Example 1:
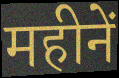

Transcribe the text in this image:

महीनें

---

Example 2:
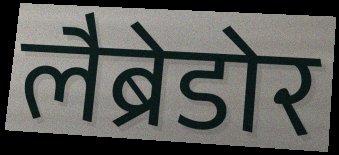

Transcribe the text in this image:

लैब्रेडोर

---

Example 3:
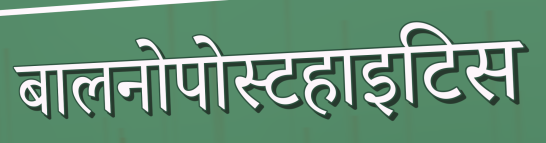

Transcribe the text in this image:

बालनोपोस्टहाइटिस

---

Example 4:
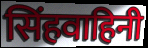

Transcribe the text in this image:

सिंहवाहिनी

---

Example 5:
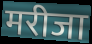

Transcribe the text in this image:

मरीजा